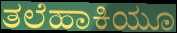
ತಲೆಹಾಕಿಯೂ